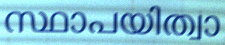
സ്ഥാപയിത്വാ